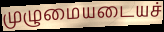
முழுமையடையச்